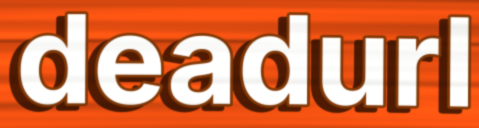
deadurl